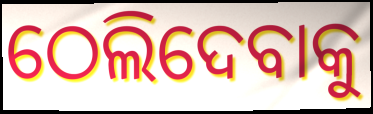
ଠେଲିଦେବାକୁ